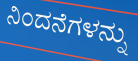
ನಿಂದನೆಗಳನ್ನು